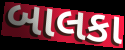
બાલકા